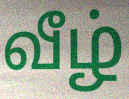
வீழ்